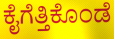
ಕೈಗೆತ್ತಿಕೊಂಡೆ